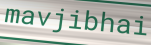
mavjibhai